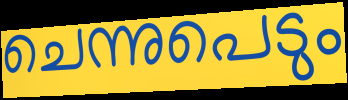
ചെന്നുപെടും